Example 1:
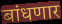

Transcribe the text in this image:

बांधणार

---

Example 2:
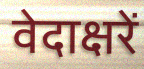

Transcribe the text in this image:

वेदाक्षरें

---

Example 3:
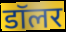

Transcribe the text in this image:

डॉलर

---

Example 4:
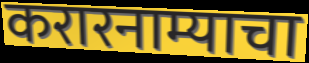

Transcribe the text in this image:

करारनाम्याचा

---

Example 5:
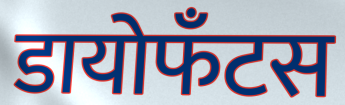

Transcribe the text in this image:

डायोफँटस